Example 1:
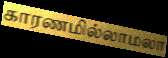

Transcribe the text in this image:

காரணமில்லாமலா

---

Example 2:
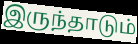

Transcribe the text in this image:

இருந்தாடும்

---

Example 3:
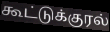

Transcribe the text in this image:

கூட்டுக்குரல்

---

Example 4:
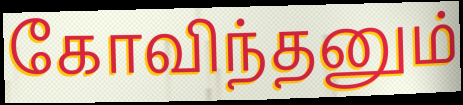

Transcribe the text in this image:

கோவிந்தனும்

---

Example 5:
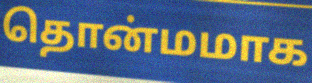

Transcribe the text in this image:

தொன்மமாக